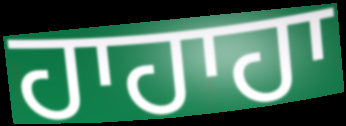
ਹਾਹਾਹਾ